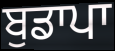
ਬੁਡਾਪਾ